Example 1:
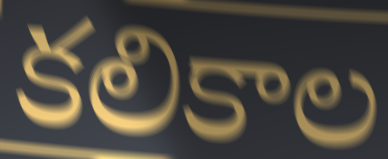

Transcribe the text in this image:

కలికాల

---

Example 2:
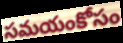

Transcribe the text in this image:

సమయంకోసం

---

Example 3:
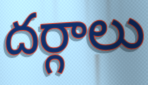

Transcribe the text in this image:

దర్గాలు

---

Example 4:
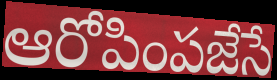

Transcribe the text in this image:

ఆరోపింపజేసే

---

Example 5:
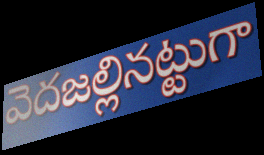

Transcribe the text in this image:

వెదజల్లినట్టుగా